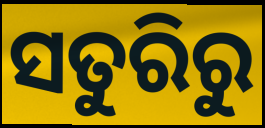
ସତୁରିରୁ